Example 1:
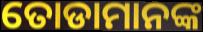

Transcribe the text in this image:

ତୋଡାମାନଙ୍କ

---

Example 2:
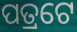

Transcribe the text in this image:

ପତ୍ରଟେ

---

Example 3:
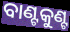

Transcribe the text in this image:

ବାଣ୍ଟକୁଣ୍ଟ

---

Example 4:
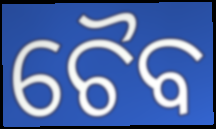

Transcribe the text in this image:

ଚୈବ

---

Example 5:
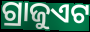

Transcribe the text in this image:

ଗ୍ରାଜୁଏଟ